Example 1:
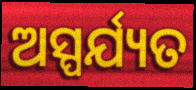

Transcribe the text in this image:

ଅସ୍ପର୍ଯ୍ୟତ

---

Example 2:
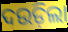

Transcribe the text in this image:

ଦଉଡ଼ିଲା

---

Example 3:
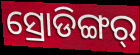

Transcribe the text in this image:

ସ୍ରୋଡିଙ୍ଗର୍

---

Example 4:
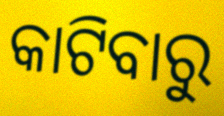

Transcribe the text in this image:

କାଟିବାରୁ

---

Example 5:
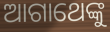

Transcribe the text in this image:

ଆଗାଥେଙ୍କୁ